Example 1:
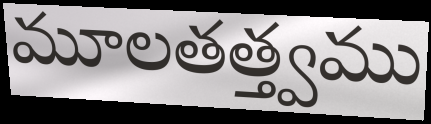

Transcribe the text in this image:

మూలతత్త్వము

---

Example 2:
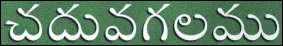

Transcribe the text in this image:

చదువగలము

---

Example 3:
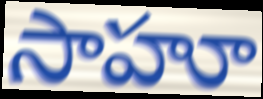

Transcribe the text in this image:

సాహూ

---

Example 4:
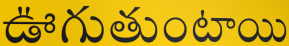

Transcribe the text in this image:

ఊగుతుంటాయి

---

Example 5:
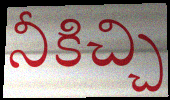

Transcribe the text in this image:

నీకిచ్చి